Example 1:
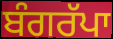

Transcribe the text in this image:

ਬੰਗਰੱਪਾ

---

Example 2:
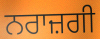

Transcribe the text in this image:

ਨਰਾਜ਼ਗੀ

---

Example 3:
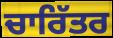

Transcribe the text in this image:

ਚਾਰਿੱਤਰ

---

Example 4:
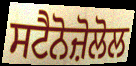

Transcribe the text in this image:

ਸਟੈਨੋਜ਼ੋਲੋਲ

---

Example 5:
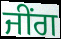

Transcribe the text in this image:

ਜੀਂਗ